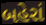
બહેરાં